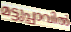
മട്ടുപ്പാവിൽ